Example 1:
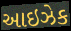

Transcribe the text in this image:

આઇઝેક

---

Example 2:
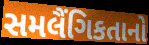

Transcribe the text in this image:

સમલૈંગિકતાનો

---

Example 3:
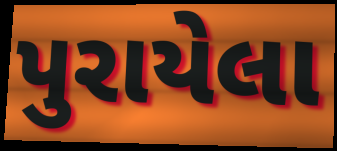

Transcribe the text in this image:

પુરાયેલા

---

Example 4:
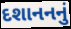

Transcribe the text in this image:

દશાનનનું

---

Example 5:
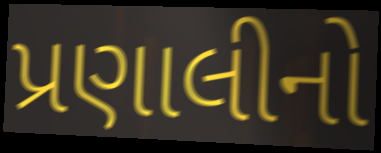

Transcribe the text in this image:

પ્રણાલીનો